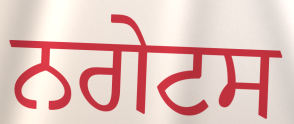
ਨਗੇਟਸ